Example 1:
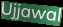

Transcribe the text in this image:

Ujjawal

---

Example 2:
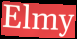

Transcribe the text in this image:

Elmy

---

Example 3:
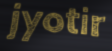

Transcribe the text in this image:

jyotir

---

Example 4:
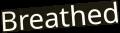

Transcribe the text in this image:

Breathed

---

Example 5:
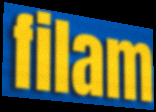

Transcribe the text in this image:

filam